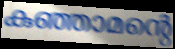
കുഞ്ഞാമന്റെ